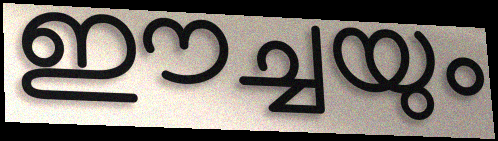
ഈച്ചയും